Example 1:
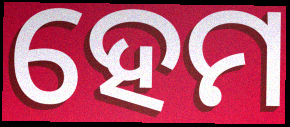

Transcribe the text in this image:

ହେମ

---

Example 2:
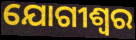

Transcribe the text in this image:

ଯୋଗୀଶ୍ୱର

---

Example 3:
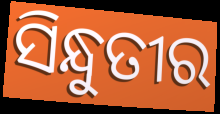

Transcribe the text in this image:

ସିନ୍ଧୁତୀର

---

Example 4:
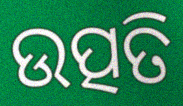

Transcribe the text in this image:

ଉତ୍ପତି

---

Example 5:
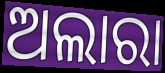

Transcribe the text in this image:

ଅଲାରା